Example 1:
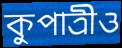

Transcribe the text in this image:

কুপাত্রীও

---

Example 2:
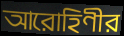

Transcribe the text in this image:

আরোহিণীর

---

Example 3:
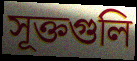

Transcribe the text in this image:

সূক্তগুলি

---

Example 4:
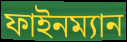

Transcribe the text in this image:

ফাইনম্যান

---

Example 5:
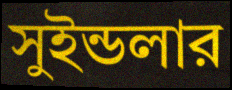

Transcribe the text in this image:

সুইন্ডলার